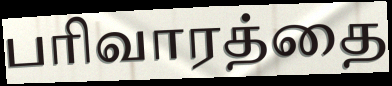
பரிவாரத்தை